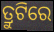
ତ୍ରୁଟିରେ